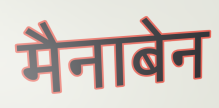
मैनाबेन